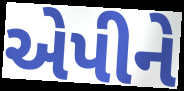
એપીને